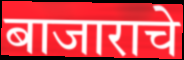
बाजाराचे